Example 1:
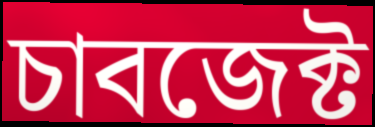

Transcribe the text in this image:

চাবজেক্ট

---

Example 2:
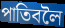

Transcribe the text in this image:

পাতিবলৈ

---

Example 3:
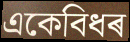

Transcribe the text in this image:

একেবিধৰ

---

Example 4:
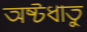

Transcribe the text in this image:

অষ্টধাতু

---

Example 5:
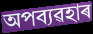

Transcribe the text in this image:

অপব্যৱহাৰ